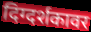
दिग्दर्शकावर